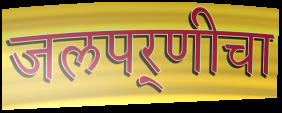
जलपर्णीचा